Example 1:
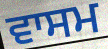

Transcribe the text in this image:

ਵਾਸਮ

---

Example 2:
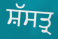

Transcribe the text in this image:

ਸ਼ੱਸਤ੍ਰ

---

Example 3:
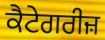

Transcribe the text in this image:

ਕੈਟੇਗਰੀਜ਼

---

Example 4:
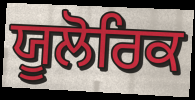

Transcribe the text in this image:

ਯੂਲੋਰਿਕ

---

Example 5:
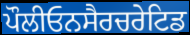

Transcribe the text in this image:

ਪੌਲੀਓਨਸੈਰਚਰੇਟਿਡ